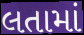
લતામાં